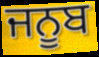
ਜਨੂਬ